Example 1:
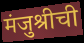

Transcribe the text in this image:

मंजुश्रीची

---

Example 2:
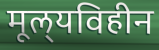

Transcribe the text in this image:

मूल्यविहीन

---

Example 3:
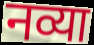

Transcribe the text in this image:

नव्‍या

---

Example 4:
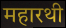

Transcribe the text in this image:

महारथी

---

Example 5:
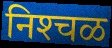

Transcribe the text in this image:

निश्‍चळ